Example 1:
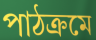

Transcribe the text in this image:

পাঠক্রমে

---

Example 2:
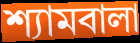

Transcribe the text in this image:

শ্যামবালা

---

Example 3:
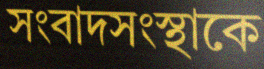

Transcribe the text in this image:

সংবাদসংস্থাকে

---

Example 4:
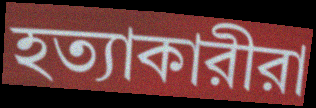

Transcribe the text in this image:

হত্যাকারীরা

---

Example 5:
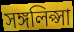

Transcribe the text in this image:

সঙ্গলিপ্সা